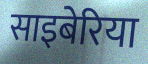
साइबेरिया